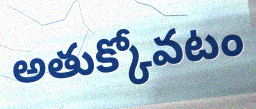
అతుక్కోవటం